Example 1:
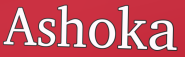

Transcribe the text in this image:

Ashoka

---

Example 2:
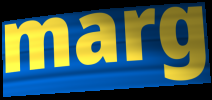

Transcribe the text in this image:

marg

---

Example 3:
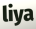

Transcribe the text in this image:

liya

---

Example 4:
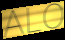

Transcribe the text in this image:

ALO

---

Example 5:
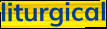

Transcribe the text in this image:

liturgical